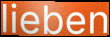
lieben